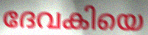
ദേവകിയെ